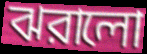
ঝরালো